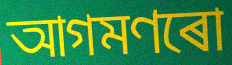
আগমণৰো